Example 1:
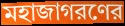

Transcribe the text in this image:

মহাজাগরণের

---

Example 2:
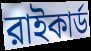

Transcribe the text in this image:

রাইকার্ড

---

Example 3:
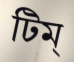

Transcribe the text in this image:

টিম্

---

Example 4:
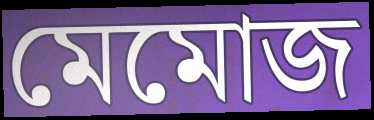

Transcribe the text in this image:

মেমোজ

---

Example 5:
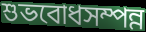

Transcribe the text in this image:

শুভবোধসম্পন্ন